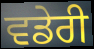
ਵਡੇਰੀ